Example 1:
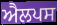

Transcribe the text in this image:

ਐਲਪਸ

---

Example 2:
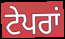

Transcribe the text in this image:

ਟੇਪਰਾਂ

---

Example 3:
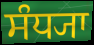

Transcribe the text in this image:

ਸੰਧ੍ਯਾ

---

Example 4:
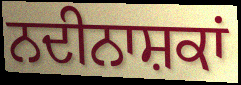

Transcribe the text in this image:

ਨਦੀਨਾਸ਼ਕਾਂ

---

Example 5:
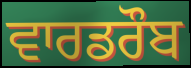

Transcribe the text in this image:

ਵਾਰਡਰੌਬ